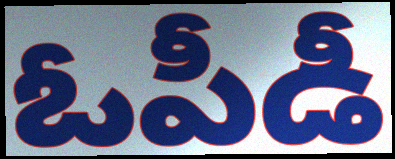
ఓపీడీ